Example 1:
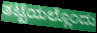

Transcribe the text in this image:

ತಟ್ಟೆಯಲ್ಲೊಂದು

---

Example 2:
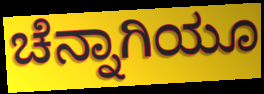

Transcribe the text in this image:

ಚೆನ್ನಾಗಿಯೂ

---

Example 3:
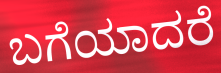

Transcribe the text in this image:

ಬಗೆಯಾದರೆ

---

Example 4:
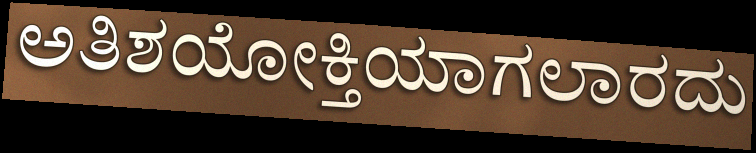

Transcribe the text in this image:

ಅತಿಶಯೋಕ್ತಿಯಾಗಲಾರದು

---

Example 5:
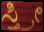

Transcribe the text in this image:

ಸ್ತ್ರೀ